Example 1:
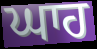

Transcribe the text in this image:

ਘਾਹ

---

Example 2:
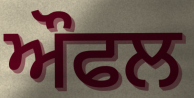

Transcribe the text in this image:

ਔਫਲ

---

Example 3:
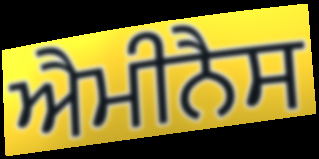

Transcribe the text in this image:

ਐਮੀਨੈਸ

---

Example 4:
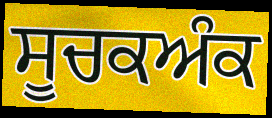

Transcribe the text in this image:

ਸੂਚਕਅੰਕ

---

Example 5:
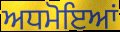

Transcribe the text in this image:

ਅਧਮੋਇਆਂ